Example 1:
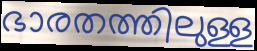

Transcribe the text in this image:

ഭാരതത്തിലുള്ള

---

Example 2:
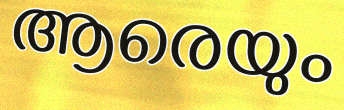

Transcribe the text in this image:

ആരെയും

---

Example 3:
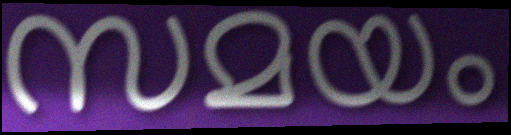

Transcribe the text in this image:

സമയം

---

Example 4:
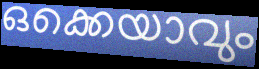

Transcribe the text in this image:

ഒക്കെയാവും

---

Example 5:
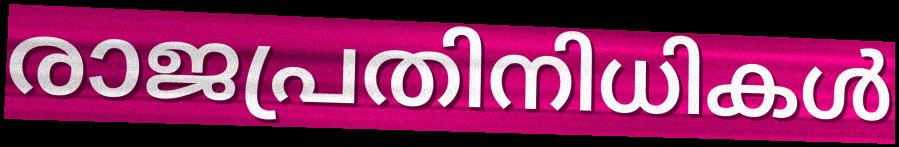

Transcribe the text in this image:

രാജപ്രതിനിധികൾ